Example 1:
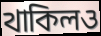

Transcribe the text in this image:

থাকিলও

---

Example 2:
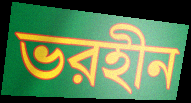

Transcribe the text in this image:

ভরহীন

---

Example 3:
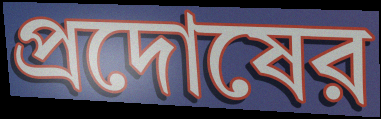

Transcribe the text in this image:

প্রদোষের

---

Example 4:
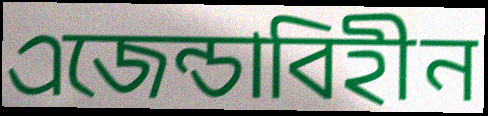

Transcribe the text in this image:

এজেন্ডাবিহীন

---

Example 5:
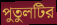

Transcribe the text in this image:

পুতুলটির